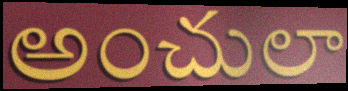
అంచులా